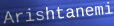
Arishtanemi